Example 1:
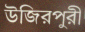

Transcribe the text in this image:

উজিরপুরী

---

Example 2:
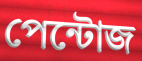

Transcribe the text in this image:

পেন্টোজ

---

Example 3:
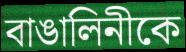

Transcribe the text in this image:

বাঙালিনীকে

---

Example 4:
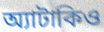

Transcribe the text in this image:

অ্যাটাকিও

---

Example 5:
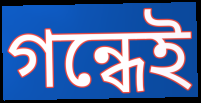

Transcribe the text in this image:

গন্ধেই